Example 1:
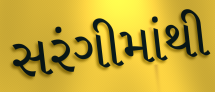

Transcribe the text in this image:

સરંગીમાંથી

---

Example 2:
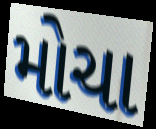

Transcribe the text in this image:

મોચા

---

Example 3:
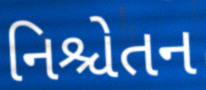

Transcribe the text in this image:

નિશ્ચેતન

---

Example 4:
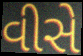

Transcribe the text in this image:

વીસે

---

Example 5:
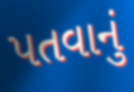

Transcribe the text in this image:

પતવાનું